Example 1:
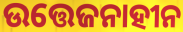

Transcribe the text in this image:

ଉତ୍ତେଜନାହୀନ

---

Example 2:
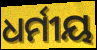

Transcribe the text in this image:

ଧର୍ମୀୟ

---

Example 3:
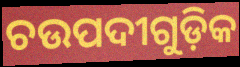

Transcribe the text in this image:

ଚଉପଦୀଗୁଡ଼ିକ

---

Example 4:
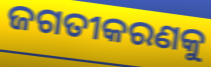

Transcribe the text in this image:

ଜଗତୀକରଣକୁ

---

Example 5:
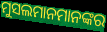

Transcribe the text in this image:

ମୁସଲମାନମାନଙ୍କର